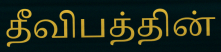
தீவிபத்தின்